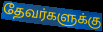
தேவர்களுக்கு